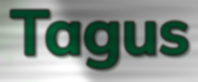
Tagus